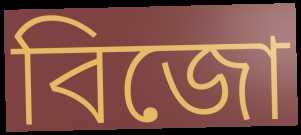
বিজো